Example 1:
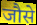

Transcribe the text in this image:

जौसे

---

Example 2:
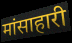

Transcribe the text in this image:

मांसाहारी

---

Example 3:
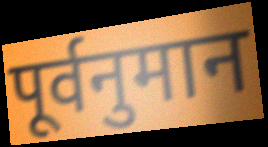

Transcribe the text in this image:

पूर्वनुमान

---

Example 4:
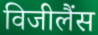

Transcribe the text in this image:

विजीलैंस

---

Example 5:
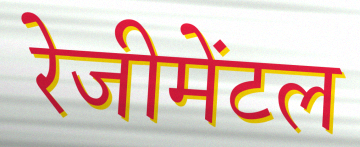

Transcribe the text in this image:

रेजीमेंटल